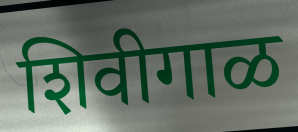
शिवीगाळ